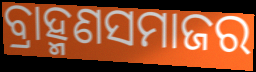
ବ୍ରାହ୍ମଣସମାଜର